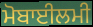
ਮੋਬਾਈਲਮੀ